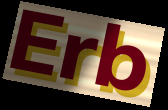
Erb